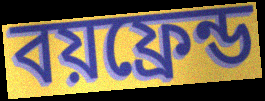
বয়ফ্রেন্ড